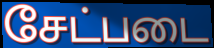
சேட்படை